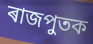
ৰাজপুতক